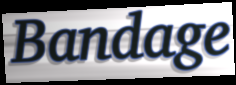
Bandage